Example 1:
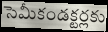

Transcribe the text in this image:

సెమీకండక్టర్లకు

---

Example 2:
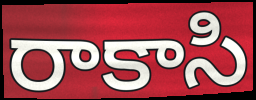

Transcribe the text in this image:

రాకాసి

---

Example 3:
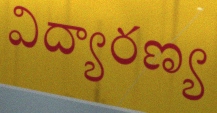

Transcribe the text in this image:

విద్యారణ్య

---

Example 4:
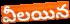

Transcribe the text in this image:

వీలయిన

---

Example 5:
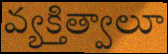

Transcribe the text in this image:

వ్యక్తిత్వాలూ